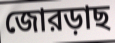
জোরড়াছ